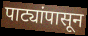
पाट्यांपासून